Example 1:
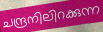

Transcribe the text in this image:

ചന്ദ്രനിലിറക്കുന്ന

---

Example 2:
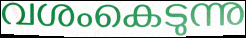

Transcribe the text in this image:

വശംകെടുന്നു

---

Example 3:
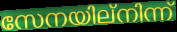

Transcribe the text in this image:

സേനയില്നിന്ന്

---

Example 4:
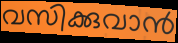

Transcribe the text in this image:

വസിക്കുവാൻ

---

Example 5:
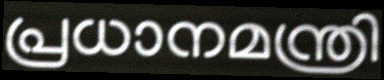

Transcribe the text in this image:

പ്രധാനമന്ത്രി